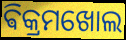
ଵିକ୍ରମଖୋଲ